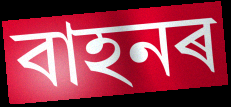
বাহনৰ